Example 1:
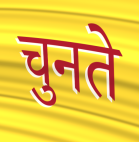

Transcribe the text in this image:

चुनते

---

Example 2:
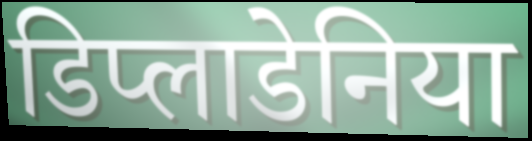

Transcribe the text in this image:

डिप्लाडेनिया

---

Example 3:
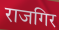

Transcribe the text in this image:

राजगिर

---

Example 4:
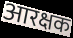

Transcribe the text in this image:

आरक्षक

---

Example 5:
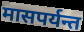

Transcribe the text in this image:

मासपर्यन्त